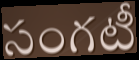
సంగటీ